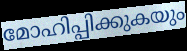
മോഹിപ്പിക്കുകയും